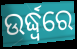
ଉର୍ଦ୍ଧ୍ଵରେ